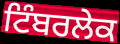
ਟਿੰਬਰਲੇਕ